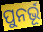
ପୁନର୍ଭୂ